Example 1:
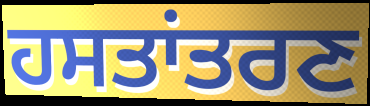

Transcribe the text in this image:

ਹਸਤਾਂਤਰਣ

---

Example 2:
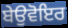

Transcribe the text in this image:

ਬੇਉਵੋਇਰ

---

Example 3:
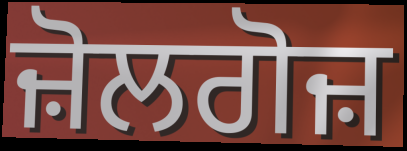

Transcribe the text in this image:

ਜ਼ੋਲਗੋਜ਼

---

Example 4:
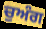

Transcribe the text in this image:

ਚੁਅੰਗ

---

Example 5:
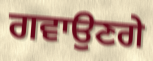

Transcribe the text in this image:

ਗਵਾਉਣਗੇ